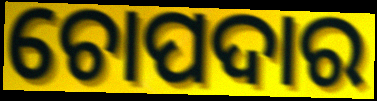
ଚୋପଦାର